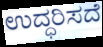
ಉದ್ಧರಿಸದೆ